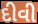
દીવી